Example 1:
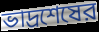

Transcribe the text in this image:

ভাদ্রশেষের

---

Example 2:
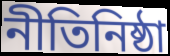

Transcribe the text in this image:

নীতিনিষ্ঠা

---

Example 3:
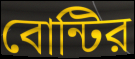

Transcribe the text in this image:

বোন্টির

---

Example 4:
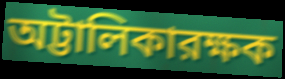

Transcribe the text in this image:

অট্টালিকারক্ষক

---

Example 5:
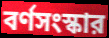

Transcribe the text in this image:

বর্ণসংস্কার